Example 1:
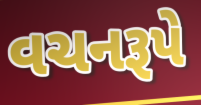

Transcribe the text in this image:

વચનરૂપે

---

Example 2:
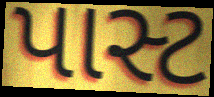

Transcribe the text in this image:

પાસ્ટ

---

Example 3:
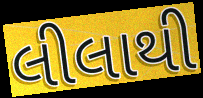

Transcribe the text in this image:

લીલાથી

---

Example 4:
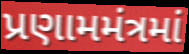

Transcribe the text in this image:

પ્રણામમંત્રમાં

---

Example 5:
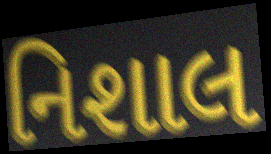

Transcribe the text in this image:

નિશાલ